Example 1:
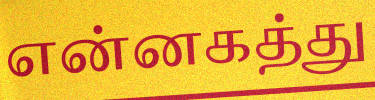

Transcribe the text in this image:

என்னகத்து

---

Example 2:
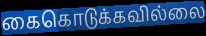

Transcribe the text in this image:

கைகொடுக்கவில்லை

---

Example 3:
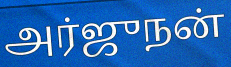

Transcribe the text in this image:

அர்ஜுநன்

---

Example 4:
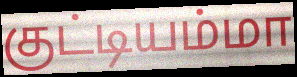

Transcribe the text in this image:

குட்டியம்மா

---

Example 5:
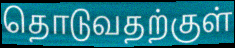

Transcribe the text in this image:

தொடுவதற்குள்